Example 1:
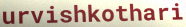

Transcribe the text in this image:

urvishkothari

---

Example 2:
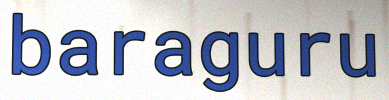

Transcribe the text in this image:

baraguru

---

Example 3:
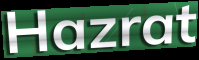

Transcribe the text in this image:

Hazrat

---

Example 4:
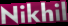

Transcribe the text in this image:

Nikhil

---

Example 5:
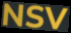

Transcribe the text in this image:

NSV